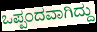
ಒಪ್ಪಂದವಾಗಿದ್ದು